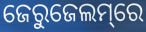
ଜେରୁଜେଲମ୍‌ରେ